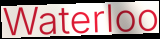
Waterloo